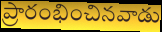
ప్రారంభించినవాడు